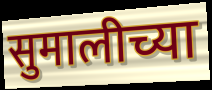
सुमालीच्या